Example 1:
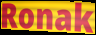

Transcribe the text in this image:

Ronak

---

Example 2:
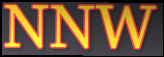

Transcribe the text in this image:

NNW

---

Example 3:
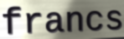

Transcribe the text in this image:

francs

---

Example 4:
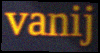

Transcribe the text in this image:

vanij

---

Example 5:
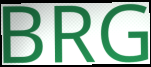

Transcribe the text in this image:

BRG